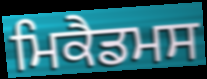
ਮਿਕੈਡਮਸ